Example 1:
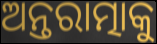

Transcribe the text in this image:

ଅନ୍ତରାତ୍ମାକୁ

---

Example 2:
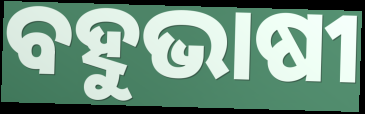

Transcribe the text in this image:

ବହୁଭାଷୀ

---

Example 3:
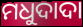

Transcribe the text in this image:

ମଧୁଦାଦା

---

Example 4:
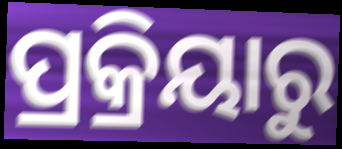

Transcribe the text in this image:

ପ୍ରକ୍ରିୟାରୁ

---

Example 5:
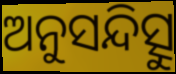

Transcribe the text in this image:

ଅନୁସନ୍ଦିତ୍ସୁ